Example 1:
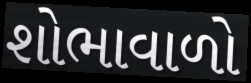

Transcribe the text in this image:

શોભાવાળો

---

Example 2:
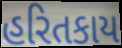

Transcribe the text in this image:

હરિતકાય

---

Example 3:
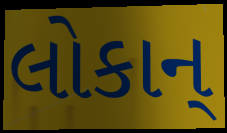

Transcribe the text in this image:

લોકાન્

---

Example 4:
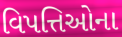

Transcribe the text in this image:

વિપત્તિઓના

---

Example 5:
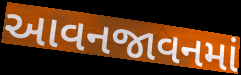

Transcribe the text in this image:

આવનજાવનમાં